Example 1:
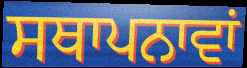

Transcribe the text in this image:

ਸਥਾਪਨਾਵਾਂ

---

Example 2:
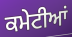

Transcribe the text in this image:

ਕਮੇਟੀਆਂ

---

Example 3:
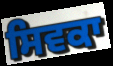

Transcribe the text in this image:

ਸਿਵਕਾ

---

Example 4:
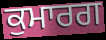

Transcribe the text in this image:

ਕੁਮਾਰਗ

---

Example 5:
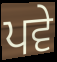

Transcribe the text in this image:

ਪਵੇ